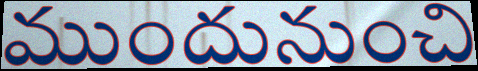
ముందునుంచి